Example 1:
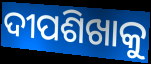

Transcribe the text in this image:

ଦୀପଶିଖାକୁ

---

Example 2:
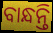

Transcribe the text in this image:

ବାନ୍ଧନ୍ତି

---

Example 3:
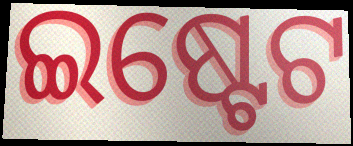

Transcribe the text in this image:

ଇଷ୍ଟେଟ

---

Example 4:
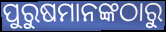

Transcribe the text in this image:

ପୁରୁଷମାନଙ୍କଠାରୁ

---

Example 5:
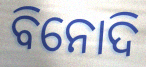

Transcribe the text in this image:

ବିନୋଦି